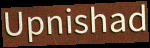
Upnishad